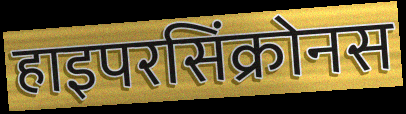
हाइपरसिंक्रोनस